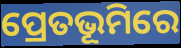
ପ୍ରେତଭୂମିରେ